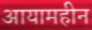
आयामहीन